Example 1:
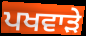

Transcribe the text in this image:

ਪਖਵਾੜੇ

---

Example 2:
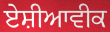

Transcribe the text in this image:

ਏਸ਼ੀਆਵੀਕ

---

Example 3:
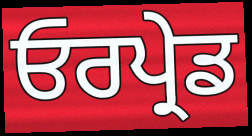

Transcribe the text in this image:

ਓਰਪ੍ਰੇਡ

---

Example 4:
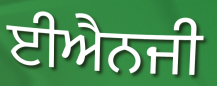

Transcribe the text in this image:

ਈਐਨਜੀ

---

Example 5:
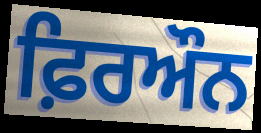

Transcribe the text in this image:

ਫ਼ਿਰਔਨ